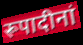
रूपादीनां